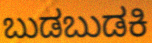
ಬುಡಬುಡಕಿ